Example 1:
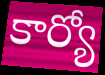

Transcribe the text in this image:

కార్యో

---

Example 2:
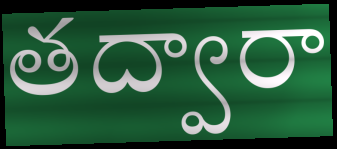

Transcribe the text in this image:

తద్వారా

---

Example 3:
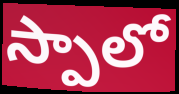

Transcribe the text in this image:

స్పాలో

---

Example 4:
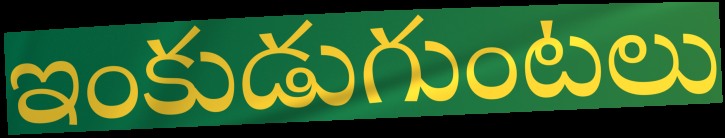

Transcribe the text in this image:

ఇంకుడుగుంటలు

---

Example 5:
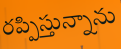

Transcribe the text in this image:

రప్పిస్తున్నాను